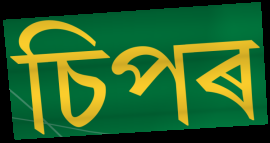
চিপৰ